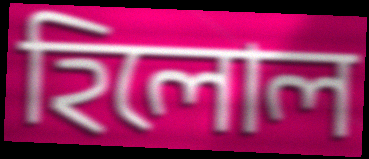
হিলোল